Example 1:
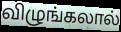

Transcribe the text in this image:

விழுங்கலால்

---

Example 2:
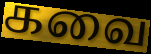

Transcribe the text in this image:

கவை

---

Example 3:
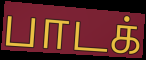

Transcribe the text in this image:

பாடக்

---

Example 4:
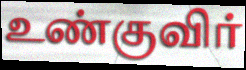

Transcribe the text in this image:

உண்குவிர்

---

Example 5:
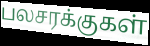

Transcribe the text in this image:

பலசரக்குகள்